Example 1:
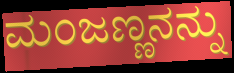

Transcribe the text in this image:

ಮಂಜಣ್ಣನನ್ನು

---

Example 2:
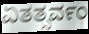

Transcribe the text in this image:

ಏತತ್ಸರ್ವಂ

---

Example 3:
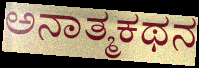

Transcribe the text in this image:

ಅನಾತ್ಮಕಥನ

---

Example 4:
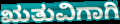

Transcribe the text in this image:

ಋತುವಿಗಾಗಿ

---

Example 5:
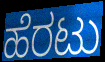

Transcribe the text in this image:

ಹೆರಟು